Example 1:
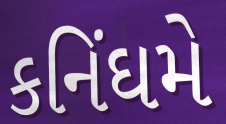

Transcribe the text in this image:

કનિંઘમે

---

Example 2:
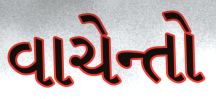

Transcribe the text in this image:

વાચેન્તો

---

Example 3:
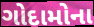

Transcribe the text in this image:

ગોદામોના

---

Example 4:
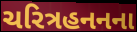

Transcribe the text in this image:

ચરિત્રહનનના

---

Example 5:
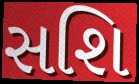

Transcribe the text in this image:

સશિ